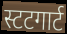
स्टटगार्ट